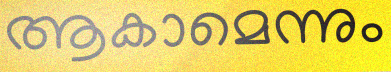
ആകാമെന്നും